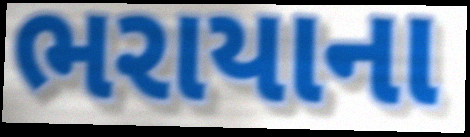
ભરાયાના